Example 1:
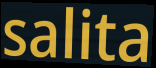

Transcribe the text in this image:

salita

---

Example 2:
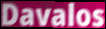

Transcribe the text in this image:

Davalos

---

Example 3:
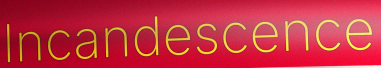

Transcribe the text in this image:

Incandescence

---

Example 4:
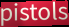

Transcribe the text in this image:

pistols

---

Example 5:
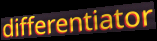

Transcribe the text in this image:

differentiator